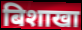
बिशाखा